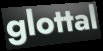
glottal